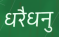
धरैधनु